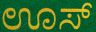
ಊಸ್